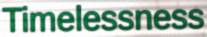
Timelessness